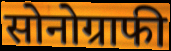
सोनोग्राफी